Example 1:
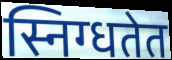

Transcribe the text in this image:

स्निग्धतेत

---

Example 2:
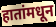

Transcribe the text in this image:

हातांमधून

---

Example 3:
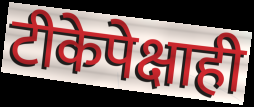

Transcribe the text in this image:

टीकेपेक्षाही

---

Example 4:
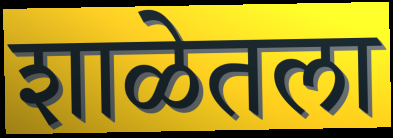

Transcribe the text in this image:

शाळेतला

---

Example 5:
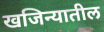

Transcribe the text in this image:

खजिन्यातील